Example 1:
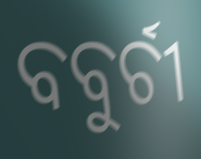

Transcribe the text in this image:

ବବୁର୍ଚୀ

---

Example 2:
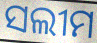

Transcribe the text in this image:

ସଲୀମ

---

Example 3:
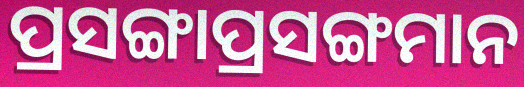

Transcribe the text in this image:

ପ୍ରସଙ୍ଗାପ୍ରସଙ୍ଗମାନ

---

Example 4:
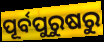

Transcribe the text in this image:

ପୂର୍ବପୁରୁଷରୁ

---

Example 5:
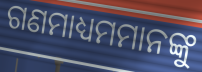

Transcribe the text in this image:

ଗଣମାଧ୍ୟମମାନଙ୍କୁ